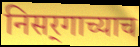
निसर्गाच्याच